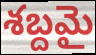
శబ్దమై